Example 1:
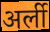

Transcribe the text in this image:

अर्ली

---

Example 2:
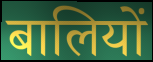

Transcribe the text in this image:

बालियों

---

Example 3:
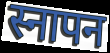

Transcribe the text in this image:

स्नापन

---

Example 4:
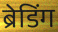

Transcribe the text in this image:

ब्रेडिंग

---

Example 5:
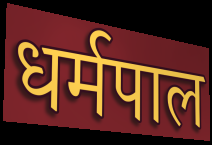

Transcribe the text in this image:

धर्मपाल